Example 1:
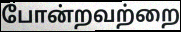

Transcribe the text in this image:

போன்றவற்றை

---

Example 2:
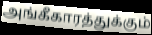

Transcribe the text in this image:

அங்கீகாரத்துக்கும்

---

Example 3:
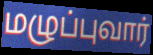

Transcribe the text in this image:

மழுப்புவார்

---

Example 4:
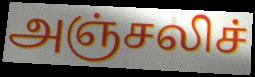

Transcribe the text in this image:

அஞ்சலிச்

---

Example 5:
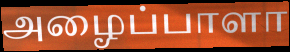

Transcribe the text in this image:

அழைப்பாளா